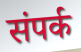
संपर्क